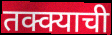
तक्क्याची